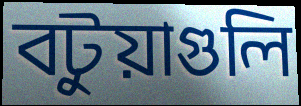
বটুয়াগুলি